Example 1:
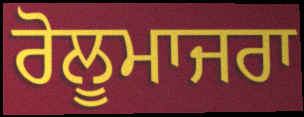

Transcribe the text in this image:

ਰੋਲੂਮਾਜਰਾ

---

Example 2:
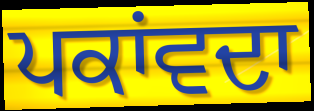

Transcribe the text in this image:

ਪਕਾਂਵਦਾ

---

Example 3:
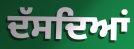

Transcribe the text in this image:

ਦੱਸਦਿਆਂ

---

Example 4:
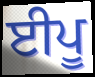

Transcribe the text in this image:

ਈਪੂ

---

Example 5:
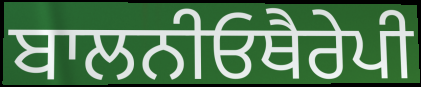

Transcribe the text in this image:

ਬਾਲਨੀਓਥੈਰੇਪੀ